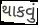
થાકવું